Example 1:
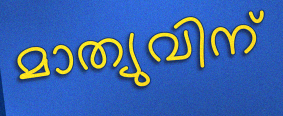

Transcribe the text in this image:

മാത്യുവിന്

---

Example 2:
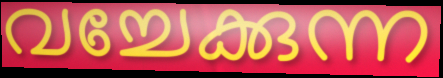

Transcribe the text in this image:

വച്ചേക്കുന്ന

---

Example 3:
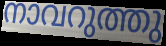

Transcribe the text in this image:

നാവറുത്തു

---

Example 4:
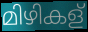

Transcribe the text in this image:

മിഴികള്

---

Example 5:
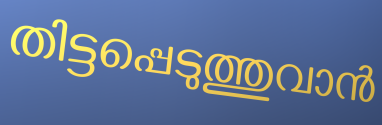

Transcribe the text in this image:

തിട്ടപ്പെടുത്തുവാൻ